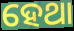
ହେଥା